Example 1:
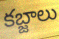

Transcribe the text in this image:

కబ్జాలు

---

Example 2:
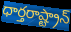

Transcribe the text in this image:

ధార్తరాష్ట్రాన్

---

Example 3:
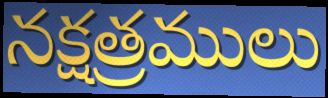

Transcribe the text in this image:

నక్షత్రములు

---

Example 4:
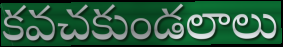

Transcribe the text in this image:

కవచకుండలాలు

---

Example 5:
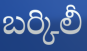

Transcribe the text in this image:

బర్కిలీ